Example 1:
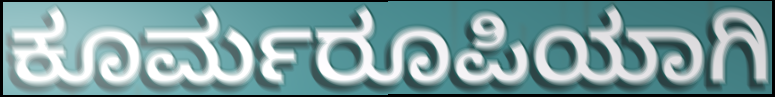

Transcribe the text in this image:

ಕೂರ್ಮರೂಪಿಯಾಗಿ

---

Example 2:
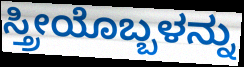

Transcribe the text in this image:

ಸ್ತ್ರೀಯೊಬ್ಬಳನ್ನು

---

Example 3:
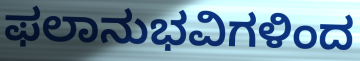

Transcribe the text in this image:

ಫಲಾನುಭವಿಗಳಿಂದ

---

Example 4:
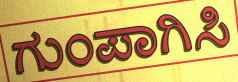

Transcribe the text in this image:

ಗುಂಪಾಗಿಸಿ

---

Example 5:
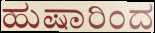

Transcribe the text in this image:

ಹುಷಾರಿಂದ